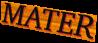
MATER